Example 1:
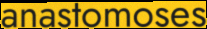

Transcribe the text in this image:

anastomoses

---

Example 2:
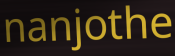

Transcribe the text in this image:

nanjothe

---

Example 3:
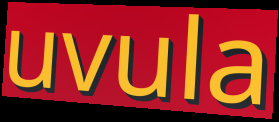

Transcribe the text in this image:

uvula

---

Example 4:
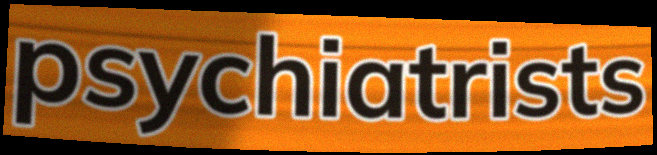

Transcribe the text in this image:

psychiatrists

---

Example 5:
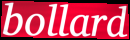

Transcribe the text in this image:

bollard